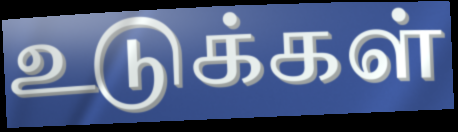
உடுக்கள்